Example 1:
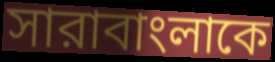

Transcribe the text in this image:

সারাবাংলাকে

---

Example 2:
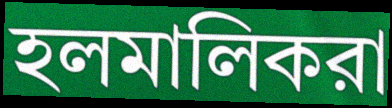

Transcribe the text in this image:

হলমালিকরা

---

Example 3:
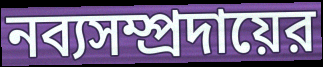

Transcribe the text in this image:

নব্যসম্প্রদায়ের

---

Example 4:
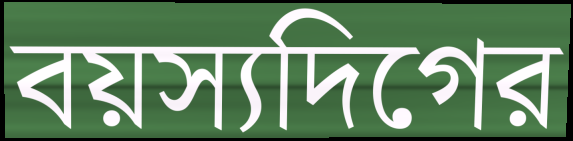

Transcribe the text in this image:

বয়স্যদিগের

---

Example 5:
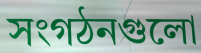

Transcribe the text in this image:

সংগঠনগুলো